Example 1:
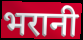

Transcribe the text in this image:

भरानी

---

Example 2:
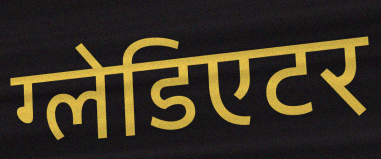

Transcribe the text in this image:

ग्लेडिएटर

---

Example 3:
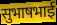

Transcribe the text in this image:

सुभाषभाई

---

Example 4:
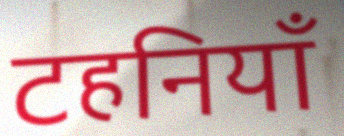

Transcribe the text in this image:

टहनियाँ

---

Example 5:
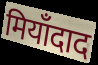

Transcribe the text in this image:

मियाँदाद